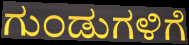
ಗುಂಡುಗಳಿಗೆ